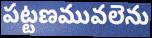
పట్టణమువలెను